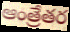
ఆంత్రేతర